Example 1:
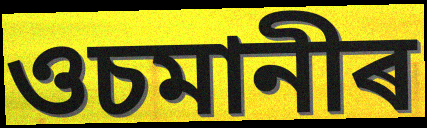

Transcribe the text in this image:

ওচমানীৰ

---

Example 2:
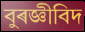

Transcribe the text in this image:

বুৰজ্ঞীবিদ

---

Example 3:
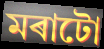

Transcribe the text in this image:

মৰাটো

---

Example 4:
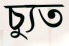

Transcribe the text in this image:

চ্যুত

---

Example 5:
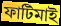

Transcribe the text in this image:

ফাটিমাই